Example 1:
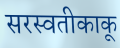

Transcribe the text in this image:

सरस्वतीकाकू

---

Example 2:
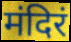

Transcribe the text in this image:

मंदिरं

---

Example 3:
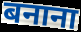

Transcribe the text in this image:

बनाना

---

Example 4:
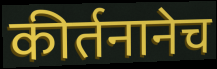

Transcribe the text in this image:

कीर्तनानेच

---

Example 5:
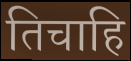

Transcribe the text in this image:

तिचाहि